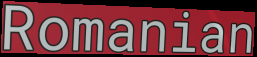
Romanian